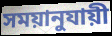
সময়ানুযায়ী